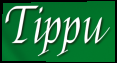
Tippu